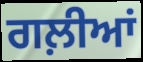
ਗਲ਼ੀਆਂ